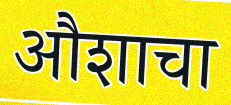
औशाचा